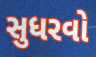
સુધરવો